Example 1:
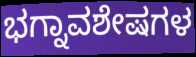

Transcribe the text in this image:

ಭಗ್ನಾವಶೇಷಗಳ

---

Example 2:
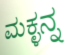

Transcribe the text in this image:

ಮಕ್ಳನ್ನ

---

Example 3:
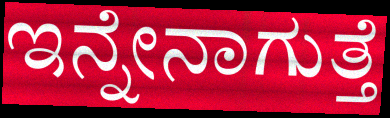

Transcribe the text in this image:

ಇನ್ನೇನಾಗುತ್ತೆ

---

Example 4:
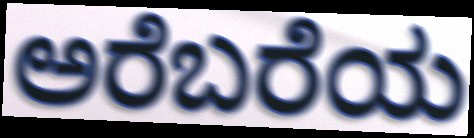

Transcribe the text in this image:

ಅರೆಬರೆಯ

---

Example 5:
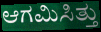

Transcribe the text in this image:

ಆಗಮಿಸಿತ್ತು